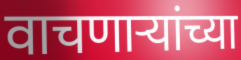
वाचणार्‍यांच्या